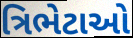
ત્રિભેટાઓ